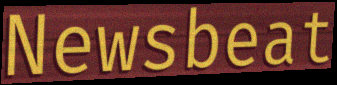
Newsbeat